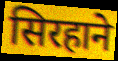
सिरहाने